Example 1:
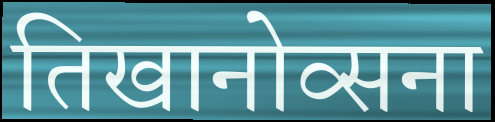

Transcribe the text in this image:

तिखानोव्सना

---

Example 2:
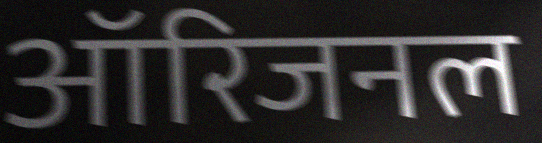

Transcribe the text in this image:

ऑरिजनल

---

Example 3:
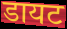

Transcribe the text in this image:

डायट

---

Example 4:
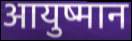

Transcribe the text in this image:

आयुष्मान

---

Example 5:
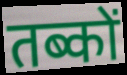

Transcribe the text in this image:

तब्कों